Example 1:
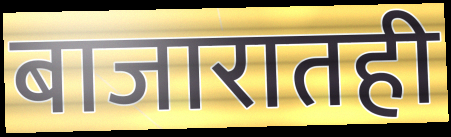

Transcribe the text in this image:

बाजारातही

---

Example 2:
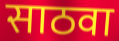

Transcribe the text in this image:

साठवा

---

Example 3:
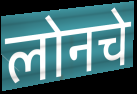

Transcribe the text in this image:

लोनचे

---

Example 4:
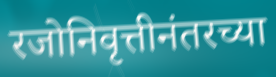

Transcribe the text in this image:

रजोनिवृत्तीनंतरच्या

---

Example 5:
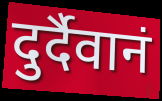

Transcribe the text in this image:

दुर्दैवानं